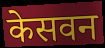
केसवन